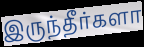
இருந்தீர்களா